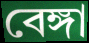
বেঙ্গা